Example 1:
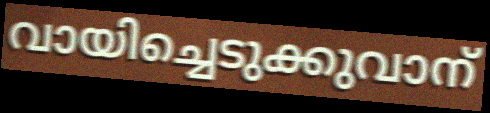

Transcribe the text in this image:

വായിച്ചെടുക്കുവാന്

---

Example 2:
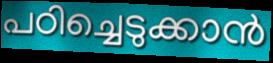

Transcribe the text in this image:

പഠിച്ചെടുക്കാൻ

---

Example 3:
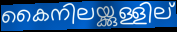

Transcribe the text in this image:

കൈനിലയ്ക്കുള്ളില്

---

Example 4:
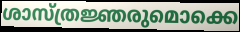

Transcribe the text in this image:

ശാസ്ത്രജ്ഞരുമൊക്കെ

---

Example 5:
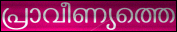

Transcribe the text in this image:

പ്രാവീണ്യത്തെ